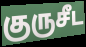
குருசீட